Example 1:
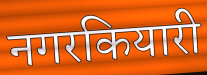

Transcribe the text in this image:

नगरकियारी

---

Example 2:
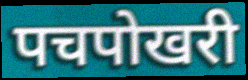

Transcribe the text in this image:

पचपोखरी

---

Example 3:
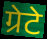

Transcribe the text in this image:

ग्रेटे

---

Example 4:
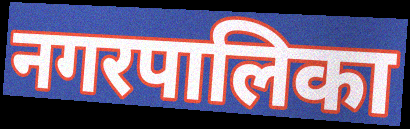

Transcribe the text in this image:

नगरपालिका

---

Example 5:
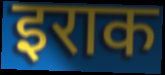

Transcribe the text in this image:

इराक